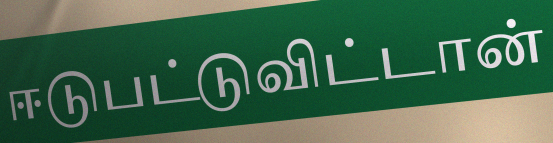
ஈடுபட்டுவிட்டான்